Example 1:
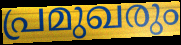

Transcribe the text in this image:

പ്രമുഖരും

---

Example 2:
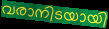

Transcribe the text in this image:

വരാനിടയായി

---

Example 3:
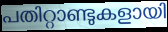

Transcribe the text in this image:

പതിറ്റാണ്ടുകളായി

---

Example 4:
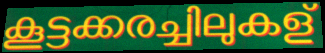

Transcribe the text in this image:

കൂട്ടക്കരച്ചിലുകള്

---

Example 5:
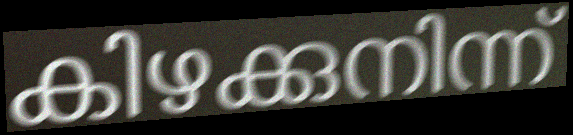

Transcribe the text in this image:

കിഴക്കുനിന്ന്